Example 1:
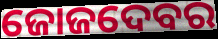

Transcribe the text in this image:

ଜୋଜଦେବର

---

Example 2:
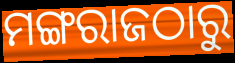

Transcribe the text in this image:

ମଙ୍ଗରାଜଠାରୁ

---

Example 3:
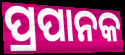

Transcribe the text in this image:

ପ୍ରପାନକ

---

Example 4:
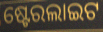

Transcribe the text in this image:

ଷ୍ଟେରଲାଇଟ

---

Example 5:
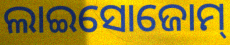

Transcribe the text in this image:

ଲାଇସୋଜୋମ୍